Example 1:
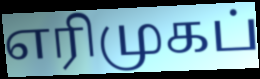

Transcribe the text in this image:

எரிமுகப்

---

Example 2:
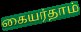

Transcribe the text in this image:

கையர்தாம்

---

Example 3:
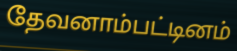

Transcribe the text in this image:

தேவனாம்பட்டினம்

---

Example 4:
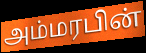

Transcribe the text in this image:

அம்மரபின்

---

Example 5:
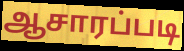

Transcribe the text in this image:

ஆசாரப்படி